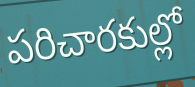
పరిచారకుల్లో